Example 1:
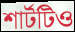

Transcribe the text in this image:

শার্টটিও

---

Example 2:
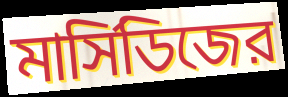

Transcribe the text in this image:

মার্সিডিজের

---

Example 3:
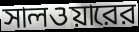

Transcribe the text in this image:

সালওয়ারের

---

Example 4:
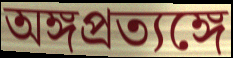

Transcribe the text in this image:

অঙ্গপ্রত্যঙ্গে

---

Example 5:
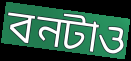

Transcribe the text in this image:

বনটাও